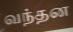
வந்தன